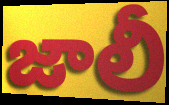
జాలీ